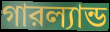
গারল্যান্ড